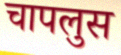
चापलुस